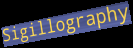
Sigillography